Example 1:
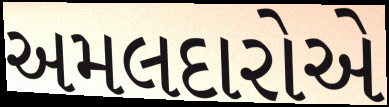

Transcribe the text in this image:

અમલદારોએ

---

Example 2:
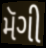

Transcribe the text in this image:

મૅગી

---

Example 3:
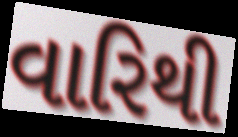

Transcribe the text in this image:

વારિથી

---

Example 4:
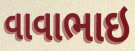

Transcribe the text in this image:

વાવાભાઇ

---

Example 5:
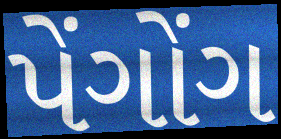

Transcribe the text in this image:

પેંગોંગ